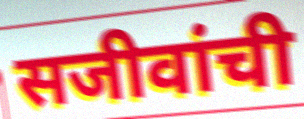
सजीवांची